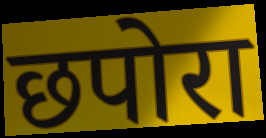
छपोरा